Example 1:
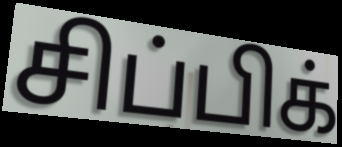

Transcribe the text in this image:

சிப்பிக்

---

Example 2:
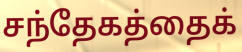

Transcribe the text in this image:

சந்தேகத்தைக்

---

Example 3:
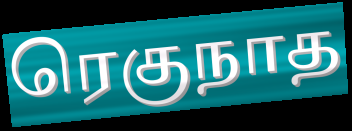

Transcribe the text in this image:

ரெகுநாத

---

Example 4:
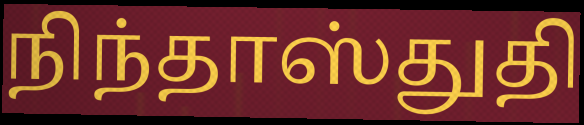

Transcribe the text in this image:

நிந்தாஸ்துதி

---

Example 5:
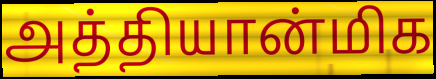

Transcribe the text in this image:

அத்தியான்மிக